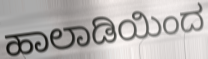
ಹಾಲಾಡಿಯಿಂದ